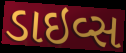
ડાઇવ્સ